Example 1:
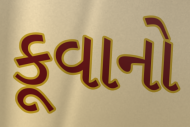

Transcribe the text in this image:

કૂવાનો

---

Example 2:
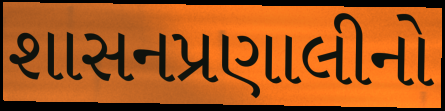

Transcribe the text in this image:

શાસનપ્રણાલીનો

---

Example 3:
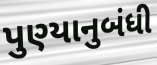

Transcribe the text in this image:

પુણ્યાનુબંધી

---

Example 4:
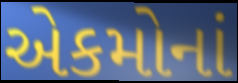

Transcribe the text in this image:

એકમોનાં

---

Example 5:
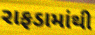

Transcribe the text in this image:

રાફડામાંથી